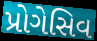
પ્રોગેસિવ